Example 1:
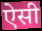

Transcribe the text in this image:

ऐसी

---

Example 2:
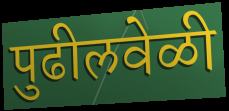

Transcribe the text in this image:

पुढीलवेळी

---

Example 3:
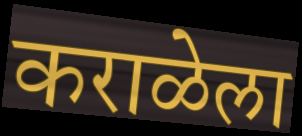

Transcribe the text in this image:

कराळेला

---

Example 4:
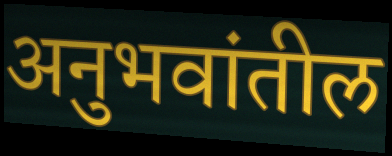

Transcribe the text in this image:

अनुभवांतील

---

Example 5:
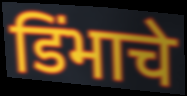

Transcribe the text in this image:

डिंभाचे